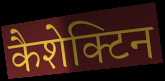
कैशेक्टिन